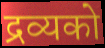
द्रव्यको